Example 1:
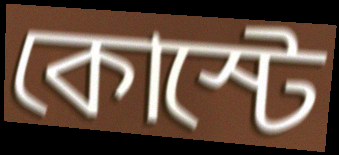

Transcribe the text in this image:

কোস্টে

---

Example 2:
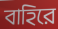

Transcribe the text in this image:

বাহিরে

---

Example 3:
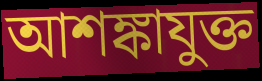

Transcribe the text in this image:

আশঙ্কাযুক্ত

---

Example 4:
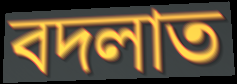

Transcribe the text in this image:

বদলাত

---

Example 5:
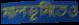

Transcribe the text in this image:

মালভূমিতেও